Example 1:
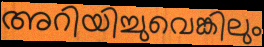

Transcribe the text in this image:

അറിയിച്ചുവെങ്കിലും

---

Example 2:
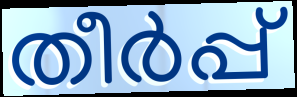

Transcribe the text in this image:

തീർപ്പ്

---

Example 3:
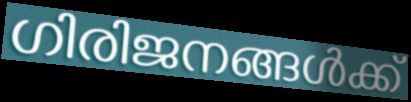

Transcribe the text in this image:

ഗിരിജനങ്ങൾക്ക്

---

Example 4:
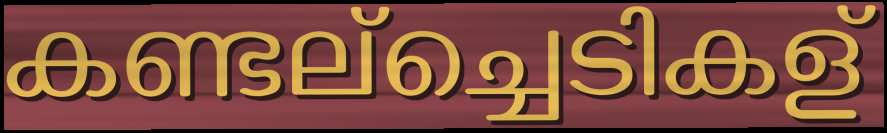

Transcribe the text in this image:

കണ്ടല്ച്ചെടികള്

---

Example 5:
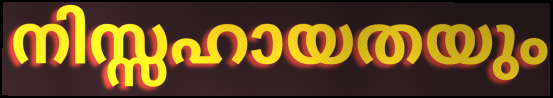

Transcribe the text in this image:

നിസ്സഹായതയും